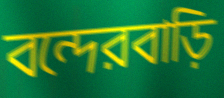
বন্দেরবাড়ি